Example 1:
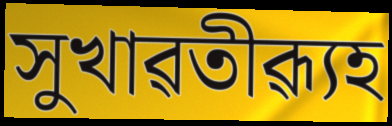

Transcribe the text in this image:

সুখাৱতীৱ্যূহ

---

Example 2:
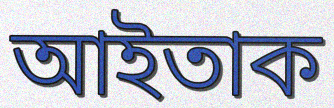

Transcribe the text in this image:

আইতাক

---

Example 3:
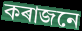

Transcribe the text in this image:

কৰাজনে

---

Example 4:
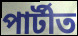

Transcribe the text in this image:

পাৰ্টীত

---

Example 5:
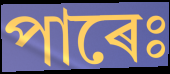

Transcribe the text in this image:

পাৰেঃ